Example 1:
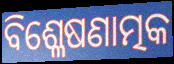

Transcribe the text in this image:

ବିଶ୍ଳେଷଣାତ୍ମକ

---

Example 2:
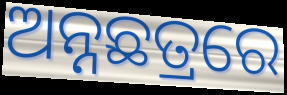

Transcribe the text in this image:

ଅନ୍ନଛତ୍ରରେ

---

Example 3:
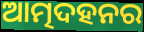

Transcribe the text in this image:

ଆତ୍ମଦହନର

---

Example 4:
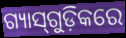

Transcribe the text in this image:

ଗ୍ୟାସ୍‌ଗୁଡ଼ିକରେ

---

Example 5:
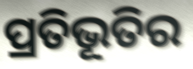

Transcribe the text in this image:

ପ୍ରତିଭୂତିର